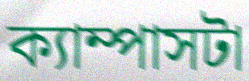
ক্যাম্পাসটা